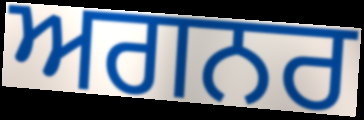
ਅਗਨਰ